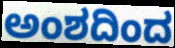
ಅಂಶದಿಂದ